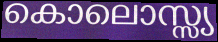
കൊലൊസ്സ്യ